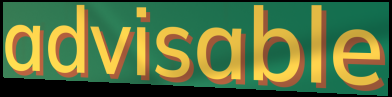
advisable